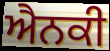
ਐਨਕੀ